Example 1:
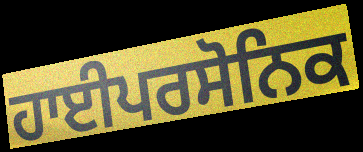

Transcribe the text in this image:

ਹਾਈਪਰਸੋਨਿਕ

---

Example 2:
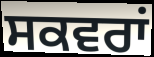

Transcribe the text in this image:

ਸਕਵਰਾਂ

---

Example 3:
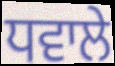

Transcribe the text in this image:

ਧਵਾਲੇ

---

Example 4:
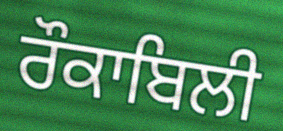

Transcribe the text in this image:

ਰੌਕਾਬਿਲੀ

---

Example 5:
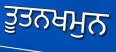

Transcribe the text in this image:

ਤੂਤਨਖਮੁਨ